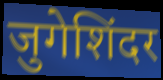
जुगेशिंदर